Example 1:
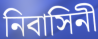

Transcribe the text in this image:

নিবাসিনী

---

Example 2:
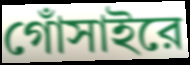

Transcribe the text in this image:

গোঁসাইরে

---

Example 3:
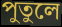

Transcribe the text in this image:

পুতুলে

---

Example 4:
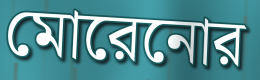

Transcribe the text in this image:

মোরেনোর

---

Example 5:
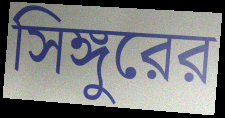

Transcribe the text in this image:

সিঙ্গুরের